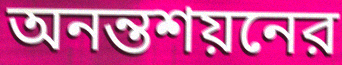
অনন্তশয়নের